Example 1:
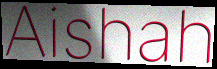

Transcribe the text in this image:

Aishah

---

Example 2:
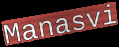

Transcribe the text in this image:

Manasvi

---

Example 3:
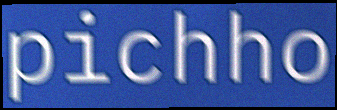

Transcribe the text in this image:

pichho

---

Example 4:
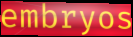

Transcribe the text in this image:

embryos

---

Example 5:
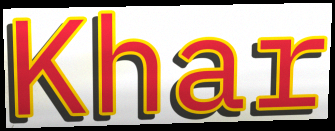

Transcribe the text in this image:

Khar